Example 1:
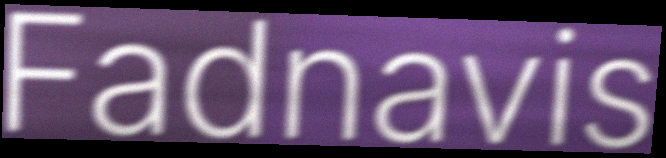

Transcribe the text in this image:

Fadnavis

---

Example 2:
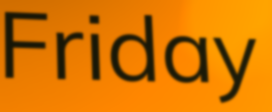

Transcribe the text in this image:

Friday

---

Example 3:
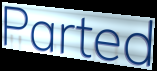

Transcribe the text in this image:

Parted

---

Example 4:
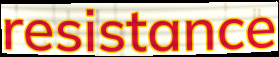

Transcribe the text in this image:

resistance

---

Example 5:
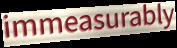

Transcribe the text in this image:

immeasurably